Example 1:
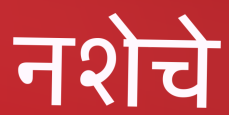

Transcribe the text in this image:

नशेचे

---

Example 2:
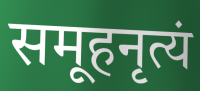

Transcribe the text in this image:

समूहनृत्यं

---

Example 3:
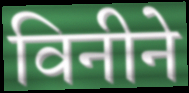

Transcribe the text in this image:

विनीने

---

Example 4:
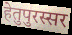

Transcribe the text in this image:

हेतुपुरस्सर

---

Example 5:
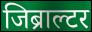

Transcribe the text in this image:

जिब्राल्टर